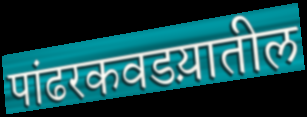
पांढरकवडय़ातील